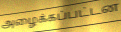
அழைக்கப்பட்டன